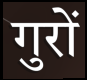
गुरों